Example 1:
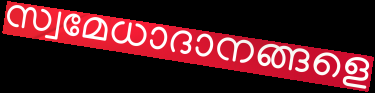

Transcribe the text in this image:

സ്വമേധാദാനങ്ങളെ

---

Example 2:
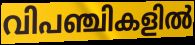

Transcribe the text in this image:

വിപഞ്ചികളിൽ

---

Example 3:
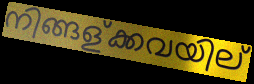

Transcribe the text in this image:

നിങ്ങള്ക്കവയില്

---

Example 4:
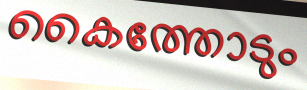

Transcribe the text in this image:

കൈത്തോടും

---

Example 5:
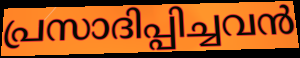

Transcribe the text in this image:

പ്രസാദിപ്പിച്ചവൻ